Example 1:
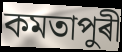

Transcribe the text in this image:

কমতাপুৰী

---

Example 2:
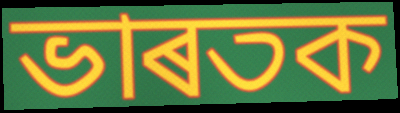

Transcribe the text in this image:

ভাৰতক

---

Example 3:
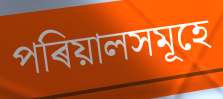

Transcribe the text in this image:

পৰিয়ালসমূহে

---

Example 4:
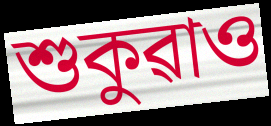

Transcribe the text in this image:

শুকুৱাও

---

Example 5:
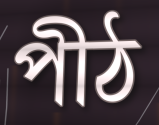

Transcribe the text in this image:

পীঠ